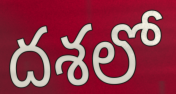
దశలో